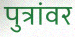
पुत्रांवर